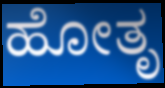
ಹೋತೃ